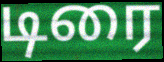
டிரை